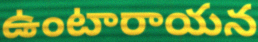
ఉంటారాయన